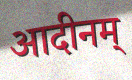
आदीनम्